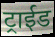
ट्राईड